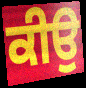
ਕੀਉ